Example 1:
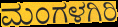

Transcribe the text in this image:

ಮಂಗಳಗಿರಿ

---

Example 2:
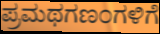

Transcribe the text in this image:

ಪ್ರಮಥಗಣಂಗಳಿಗೆ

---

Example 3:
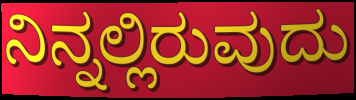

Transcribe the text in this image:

ನಿನ್ನಲ್ಲಿರುವುದು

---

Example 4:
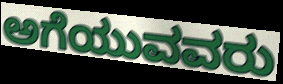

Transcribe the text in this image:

ಅಗೆಯುವವರು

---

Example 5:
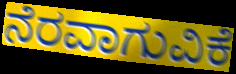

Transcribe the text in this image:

ನೆರವಾಗುವಿಕೆ